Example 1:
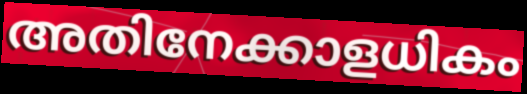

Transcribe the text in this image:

അതിനേക്കാളധികം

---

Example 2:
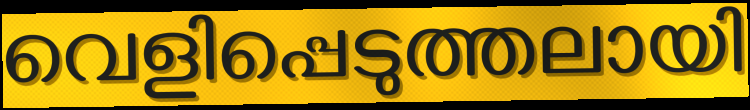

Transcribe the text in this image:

വെളിപ്പെടുത്തലായി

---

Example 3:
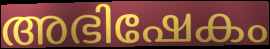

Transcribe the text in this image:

അഭിഷേകം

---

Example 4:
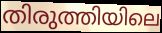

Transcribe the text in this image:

തിരുത്തിയിലെ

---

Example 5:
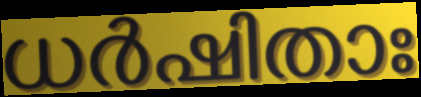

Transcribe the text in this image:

ധർഷിതാഃ